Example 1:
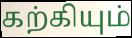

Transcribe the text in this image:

கற்கியும்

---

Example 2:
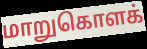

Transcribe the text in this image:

மாறுகொளக்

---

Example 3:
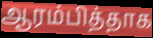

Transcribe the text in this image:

ஆரம்பித்தாக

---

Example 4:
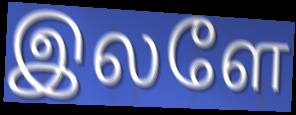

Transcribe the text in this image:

இலளே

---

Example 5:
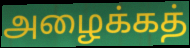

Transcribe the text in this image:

அழைக்கத்